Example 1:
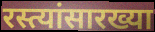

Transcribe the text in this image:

रस्त्यांसारख्या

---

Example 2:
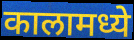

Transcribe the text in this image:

कालामध्ये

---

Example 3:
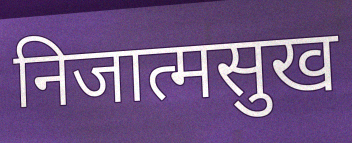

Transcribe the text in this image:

निजात्मसुख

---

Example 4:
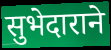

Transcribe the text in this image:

सुभेदाराने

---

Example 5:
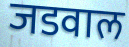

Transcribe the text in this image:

जडवाल